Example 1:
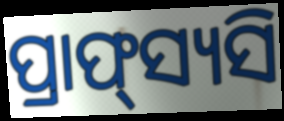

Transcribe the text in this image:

ପ୍ରାଫ୍‌ସ୍ୟସି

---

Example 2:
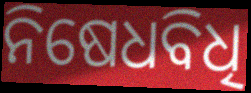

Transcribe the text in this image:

ନିଷେଧବିଧି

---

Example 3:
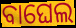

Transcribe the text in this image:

ବାଘେଲ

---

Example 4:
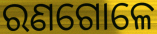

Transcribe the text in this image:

ରଣଗୋଳେ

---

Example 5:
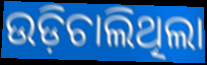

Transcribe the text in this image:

ଉଡ଼ିଚାଲିଥିଲା